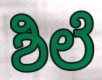
ಶಿಲೆ